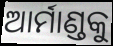
ଆର୍ମାଣ୍ଡକୁ